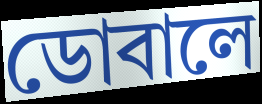
ডোবালে